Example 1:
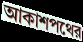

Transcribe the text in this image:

আকাশপথের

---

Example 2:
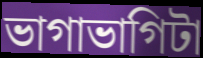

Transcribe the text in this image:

ভাগাভাগিটা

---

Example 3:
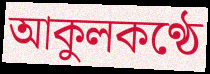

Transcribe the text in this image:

আকুলকণ্ঠে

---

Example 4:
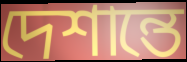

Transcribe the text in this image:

দেশান্তে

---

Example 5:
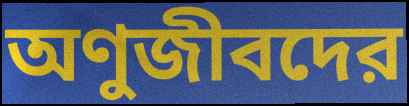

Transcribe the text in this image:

অণুজীবদের